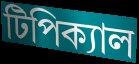
টিপিক্যাল